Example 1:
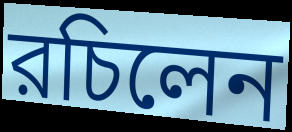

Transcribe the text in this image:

রচিলেন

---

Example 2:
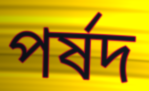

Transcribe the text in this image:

পর্ষদ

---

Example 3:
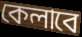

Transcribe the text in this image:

কেলাবে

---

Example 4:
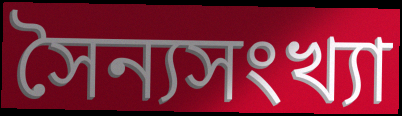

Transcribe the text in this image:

সৈন্যসংখ্যা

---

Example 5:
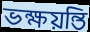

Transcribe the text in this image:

ভক্ষয়ন্তি